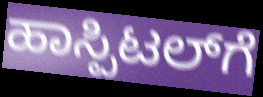
ಹಾಸ್ಪಿಟಲ್‌ಗೆ